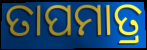
ତାପମାତ୍ର